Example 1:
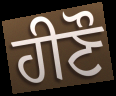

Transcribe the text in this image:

ਹੀਣੌ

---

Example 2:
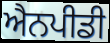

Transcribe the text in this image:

ਐਨਪੀਡੀ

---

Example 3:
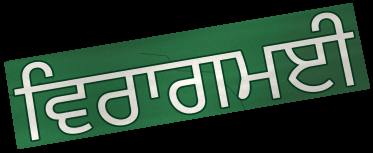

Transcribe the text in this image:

ਵਿਰਾਗਮਈ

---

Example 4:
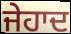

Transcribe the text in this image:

ਜੇਹਾਦ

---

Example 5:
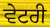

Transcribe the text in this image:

ਵੇਟਰੀ